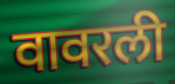
वावरली